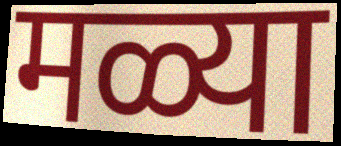
मळ्या